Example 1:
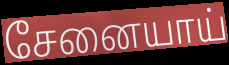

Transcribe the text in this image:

சேனையாய்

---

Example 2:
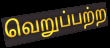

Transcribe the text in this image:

வெறுப்பற்ற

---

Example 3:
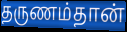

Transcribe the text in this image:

தருணம்தான்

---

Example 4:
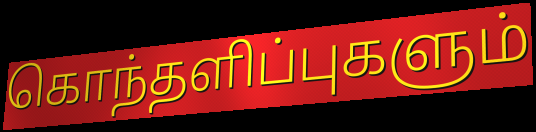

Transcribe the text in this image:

கொந்தளிப்புகளும்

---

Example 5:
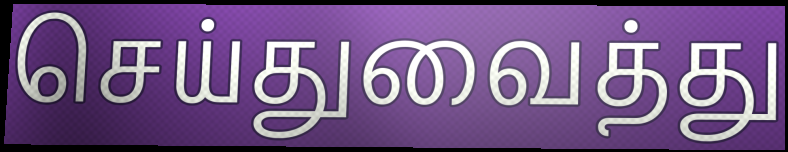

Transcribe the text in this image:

செய்துவைத்து